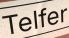
Telfer